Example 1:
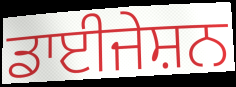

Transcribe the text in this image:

ਡਾਈਜੇਸ਼ਨ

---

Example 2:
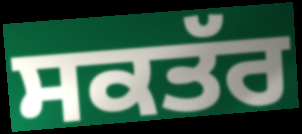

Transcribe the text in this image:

ਸਕਤੱਰ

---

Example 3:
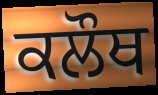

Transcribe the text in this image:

ਕਲੌਥ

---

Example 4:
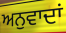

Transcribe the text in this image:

ਅਨੁਵਾਦਾਂ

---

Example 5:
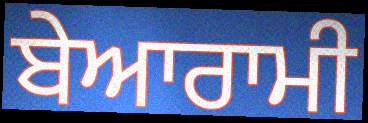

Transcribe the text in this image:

ਬੇਆਰਾਮੀ